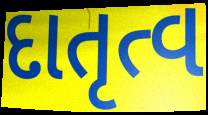
દાતૃત્વ